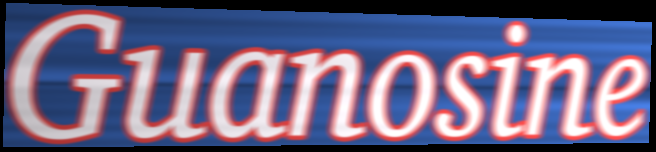
Guanosine